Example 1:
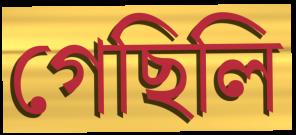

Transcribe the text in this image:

গেছিলি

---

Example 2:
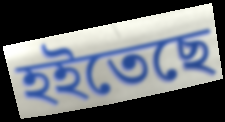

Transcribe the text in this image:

হইতেছে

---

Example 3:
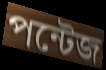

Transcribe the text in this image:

পন্টেজ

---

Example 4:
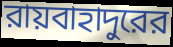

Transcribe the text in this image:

রায়বাহাদুরের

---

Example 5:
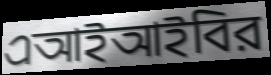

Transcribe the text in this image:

এআইআইবির